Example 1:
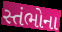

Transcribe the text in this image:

સ્તંભોના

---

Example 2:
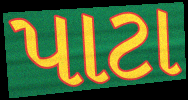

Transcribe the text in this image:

પાટા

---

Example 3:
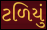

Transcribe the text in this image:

ટળિયું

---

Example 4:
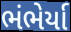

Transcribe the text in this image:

ભંભેર્યા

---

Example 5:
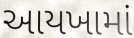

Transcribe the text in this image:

આયખામાં